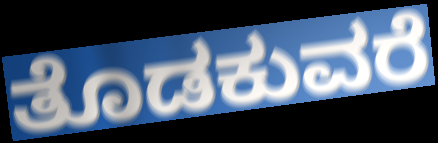
ತೊಡಕುವರೆ